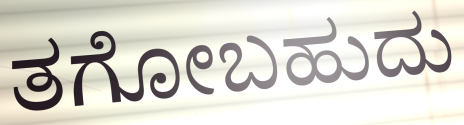
ತಗೋಬಹುದು